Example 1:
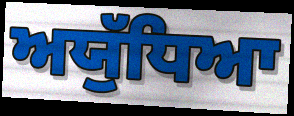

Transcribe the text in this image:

ਅਯੁੱਧਿਆ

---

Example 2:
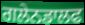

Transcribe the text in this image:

ਗਲੇਨਡਾਲਫ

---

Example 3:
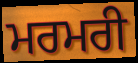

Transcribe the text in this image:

ਮਰਮਰੀ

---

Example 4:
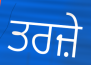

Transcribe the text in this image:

ਤਰਜ਼ੇ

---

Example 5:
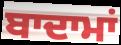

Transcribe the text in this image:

ਬਾਦਾਮਾਂ